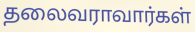
தலைவராவார்கள்